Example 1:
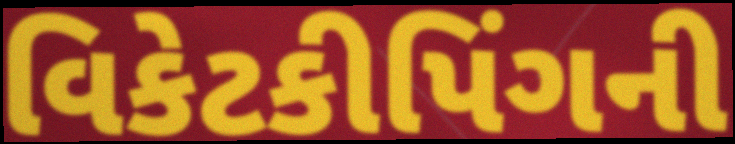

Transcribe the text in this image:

વિકેટકીપિંગની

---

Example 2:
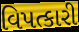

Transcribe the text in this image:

વિપત્કારી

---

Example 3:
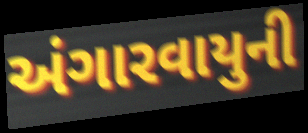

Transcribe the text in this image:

અંગારવાયુની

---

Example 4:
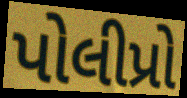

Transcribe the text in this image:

પોલીપ્રો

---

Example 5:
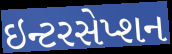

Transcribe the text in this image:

ઇન્ટરસેપ્શન